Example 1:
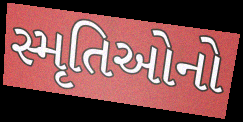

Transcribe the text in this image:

સ્મૃતિઓનો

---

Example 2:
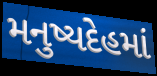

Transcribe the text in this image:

મનુષ્યદેહમાં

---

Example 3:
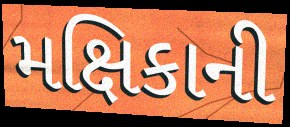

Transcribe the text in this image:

મક્ષિકાની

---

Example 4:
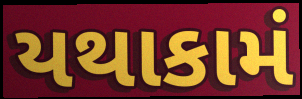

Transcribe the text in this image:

યથાકામં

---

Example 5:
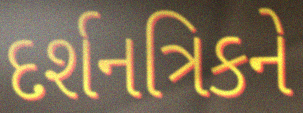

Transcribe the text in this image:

દર્શનત્રિકને